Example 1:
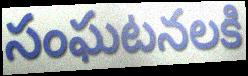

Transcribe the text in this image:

సంఘటనలకి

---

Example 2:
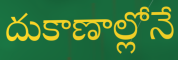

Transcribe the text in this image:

దుకాణాల్లోనే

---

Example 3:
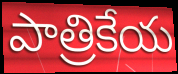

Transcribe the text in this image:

పాత్రికేయ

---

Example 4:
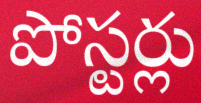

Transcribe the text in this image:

పోస్టర్లు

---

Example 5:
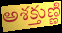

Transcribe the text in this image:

అశక్తుణ్ణి